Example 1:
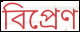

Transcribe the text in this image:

বিপ্রেণ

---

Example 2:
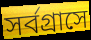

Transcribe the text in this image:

সর্বগ্রাসে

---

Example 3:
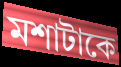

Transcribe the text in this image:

মশাটাকে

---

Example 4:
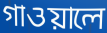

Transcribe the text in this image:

গাওয়ালে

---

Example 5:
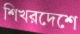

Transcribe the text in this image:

শিখরদেশে